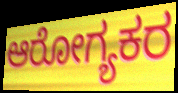
ಆರೋಗ್ಯಕರ